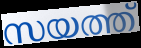
സയത്ത്